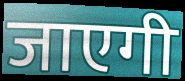
जाएगी